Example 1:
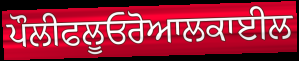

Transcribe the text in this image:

ਪੌਲੀਫਲੂਓਰੋਆਲਕਾਈਲ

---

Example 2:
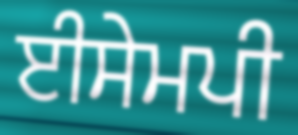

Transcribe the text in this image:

ਈਸੇਮਪੀ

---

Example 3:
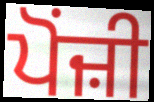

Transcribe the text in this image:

ਪੋਂਜ਼ੀ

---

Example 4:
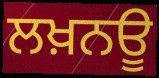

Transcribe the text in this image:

ਲਖ਼ਨਊ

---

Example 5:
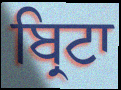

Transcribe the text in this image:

ਬ੍ਰਿਟਾ